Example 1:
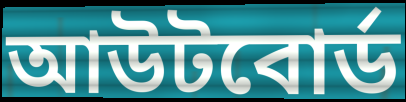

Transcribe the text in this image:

আউটবোর্ড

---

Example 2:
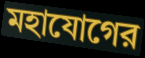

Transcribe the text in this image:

মহাযোগের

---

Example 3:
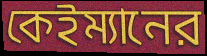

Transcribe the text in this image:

কেইম্যানের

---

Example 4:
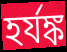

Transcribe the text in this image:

হর্যঙ্ক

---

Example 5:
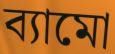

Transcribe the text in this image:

ব্যামো